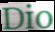
Dio